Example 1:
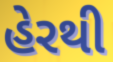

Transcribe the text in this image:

હેરથી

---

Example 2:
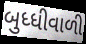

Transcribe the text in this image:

બુધ્ધીવાળી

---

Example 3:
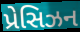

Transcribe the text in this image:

પ્રેસિઝન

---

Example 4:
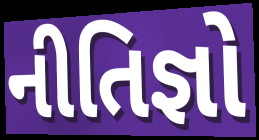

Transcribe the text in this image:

નીતિજ્ઞો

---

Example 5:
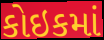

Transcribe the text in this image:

કોઇકમાં